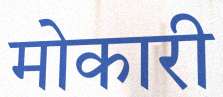
मोकारी